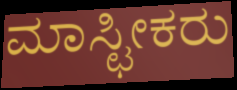
ಮಾಸ್ಟೀಕರು